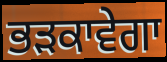
ਭੜਕਾਵੇਗਾ